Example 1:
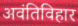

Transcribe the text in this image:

अवंतिविहार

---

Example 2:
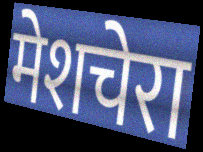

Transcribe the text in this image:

मेशचेरा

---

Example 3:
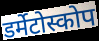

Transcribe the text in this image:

डर्मेटोस्कोप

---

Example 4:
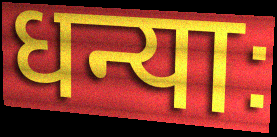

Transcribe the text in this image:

धन्याः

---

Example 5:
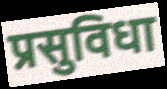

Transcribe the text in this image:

प्रसुविधा